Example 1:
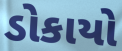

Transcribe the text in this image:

ડોકાયો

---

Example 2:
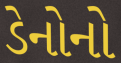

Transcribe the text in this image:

ડેનોનો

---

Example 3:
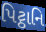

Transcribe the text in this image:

પિટ્ઠાનિ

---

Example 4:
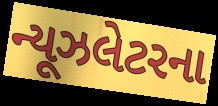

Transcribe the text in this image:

ન્યૂઝલેટરના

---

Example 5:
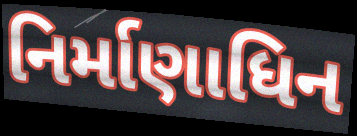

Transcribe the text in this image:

નિર્માણાધિન